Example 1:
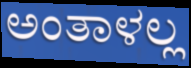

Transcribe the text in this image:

ಅಂತಾಳಲ್ಲ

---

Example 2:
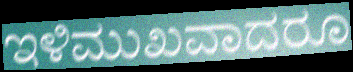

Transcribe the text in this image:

ಇಳಿಮುಖವಾದರೂ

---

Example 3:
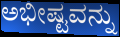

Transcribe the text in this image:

ಅಭೀಷ್ಟವನ್ನು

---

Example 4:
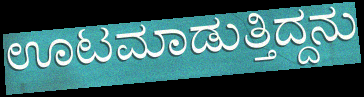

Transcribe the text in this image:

ಊಟಮಾಡುತ್ತಿದ್ದನು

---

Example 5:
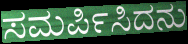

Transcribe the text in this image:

ಸಮರ್ಪಿಸಿದನು